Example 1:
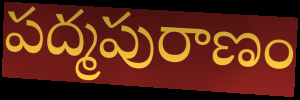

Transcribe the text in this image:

పద్మపురాణం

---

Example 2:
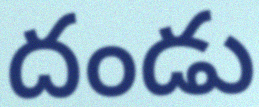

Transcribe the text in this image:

దండు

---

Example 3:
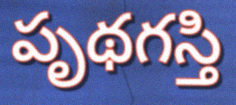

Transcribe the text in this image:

పృథగస్తి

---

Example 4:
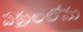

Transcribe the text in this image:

పక్షులలోను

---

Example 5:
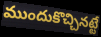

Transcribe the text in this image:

ముందుకొచ్చినట్టే